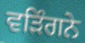
ਵੜਿੰਗਨੇ